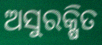
ଅସୁରକ୍ଷିତ